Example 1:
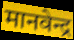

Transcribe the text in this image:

मानवेन्द्र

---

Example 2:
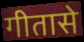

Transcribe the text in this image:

गीतासे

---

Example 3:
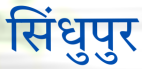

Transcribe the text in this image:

सिंधुपुर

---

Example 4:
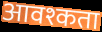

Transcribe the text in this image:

आवश्कता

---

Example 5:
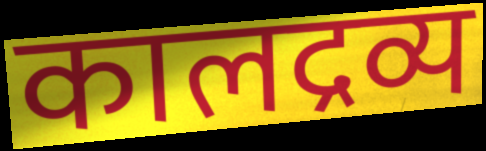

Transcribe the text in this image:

कालद्रव्य